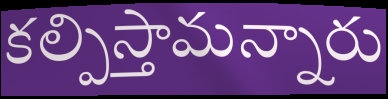
కల్పిస్తామన్నారు